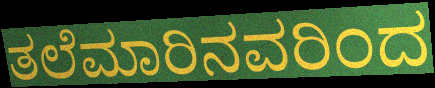
ತಲೆಮಾರಿನವರಿಂದ